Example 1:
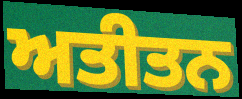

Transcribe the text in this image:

ਅਤੀਤਨ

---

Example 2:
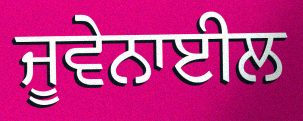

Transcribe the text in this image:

ਜੂਵੇਨਾਈਲ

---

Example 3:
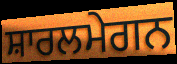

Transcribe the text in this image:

ਸ਼ਾਰਲਮੇਗਨ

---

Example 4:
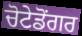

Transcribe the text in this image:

ਚੋਟੇਡੋਂਗਰ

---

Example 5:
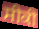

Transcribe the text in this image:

ਸੀਕੀ